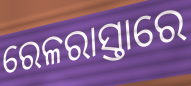
ରେଳରାସ୍ତାରେ